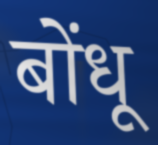
बोंधू